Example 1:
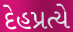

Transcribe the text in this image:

દેહપ્રત્યે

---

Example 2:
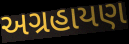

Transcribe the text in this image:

અગ્રહાયણ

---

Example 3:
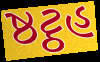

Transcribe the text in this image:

ષ્ઠટ્ઠહ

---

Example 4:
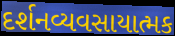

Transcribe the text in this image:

દર્શનવ્યવસાયાત્મક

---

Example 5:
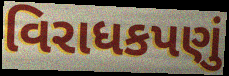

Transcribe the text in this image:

વિરાધકપણું